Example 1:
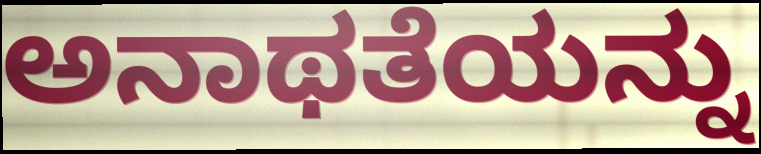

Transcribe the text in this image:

ಅನಾಥತೆಯನ್ನು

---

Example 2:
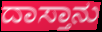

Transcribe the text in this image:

ದಾಸ್ತಾನು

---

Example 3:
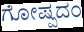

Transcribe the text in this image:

ಗೋಷ್ಪದಂ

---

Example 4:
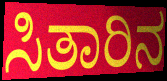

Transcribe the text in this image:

ಸಿತಾರಿನ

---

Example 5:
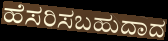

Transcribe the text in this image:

ಹೆಸರಿಸಬಹುದಾದ